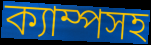
ক্যাম্পসহ